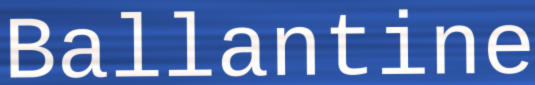
Ballantine